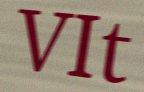
VIt